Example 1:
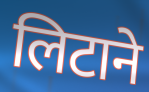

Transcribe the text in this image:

लिटाने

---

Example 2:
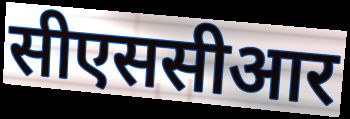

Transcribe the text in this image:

सीएससीआर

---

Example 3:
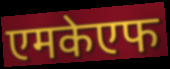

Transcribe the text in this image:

एमकेएफ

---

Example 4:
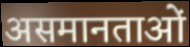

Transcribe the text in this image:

असमानताओं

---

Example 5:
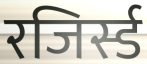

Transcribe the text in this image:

रजिर्स्ड